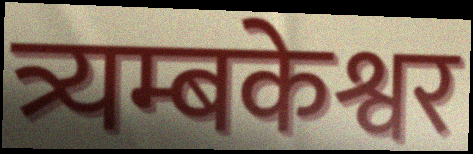
त्र्यम्बकेश्वर